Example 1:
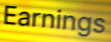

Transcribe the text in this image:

Earnings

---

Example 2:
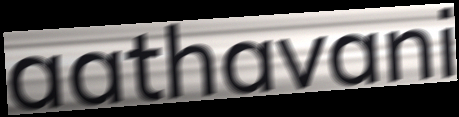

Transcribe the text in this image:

aathavani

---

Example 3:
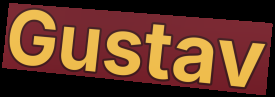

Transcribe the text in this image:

Gustav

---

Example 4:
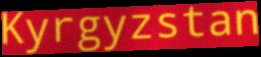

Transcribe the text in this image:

Kyrgyzstan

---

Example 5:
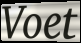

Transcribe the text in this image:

Voet